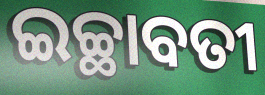
ଇଚ୍ଛାବତୀ